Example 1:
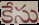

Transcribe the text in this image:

కేసు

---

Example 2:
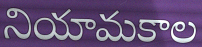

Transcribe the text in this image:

నియామకాల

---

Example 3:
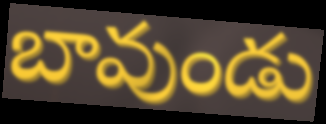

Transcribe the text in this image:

బావుండు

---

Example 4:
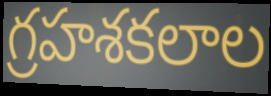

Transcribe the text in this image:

గ్రహశకలాల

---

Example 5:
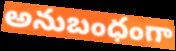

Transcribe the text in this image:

అనుబంధంగా